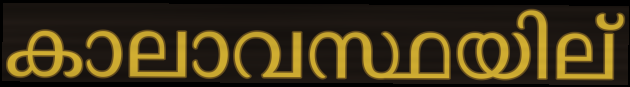
കാലാവസ്ഥയില്